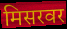
मिसरवर